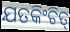
ଯତକିଂଚିତ୍